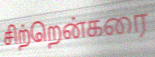
சிற்றென்கரை